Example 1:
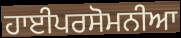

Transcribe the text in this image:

ਹਾਈਪਰਸੋਮਨੀਆ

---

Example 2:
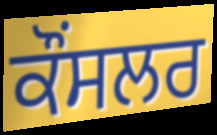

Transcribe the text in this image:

ਕੌੰਸਲਰ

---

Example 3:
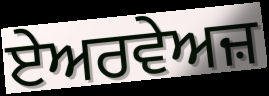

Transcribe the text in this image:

ਏਅਰਵੇਅਜ਼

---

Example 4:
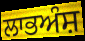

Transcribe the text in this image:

ਲਾਭਅੰਸ਼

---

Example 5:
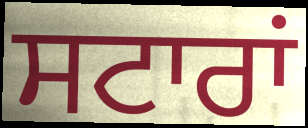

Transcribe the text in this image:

ਸਟਾਰਾਂ